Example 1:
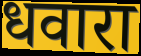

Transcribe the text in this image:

धवारा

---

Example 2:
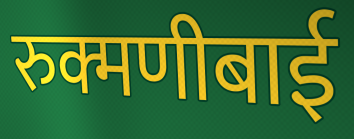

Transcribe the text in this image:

रुक्मणीबाई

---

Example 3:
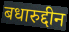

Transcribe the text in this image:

बधारुद्दीन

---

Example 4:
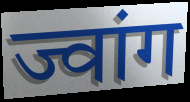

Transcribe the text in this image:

ज्वांग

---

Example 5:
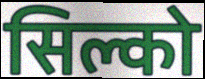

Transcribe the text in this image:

सिल्को